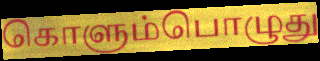
கொளும்பொழுது